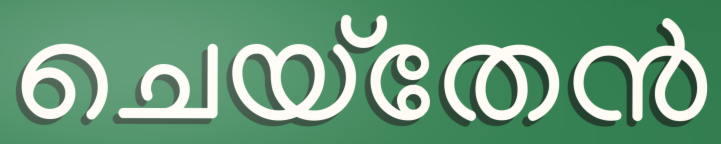
ചെയ്‌തേൻ